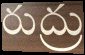
రుద్రు